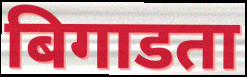
बिगाडता